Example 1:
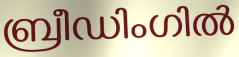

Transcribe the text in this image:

ബ്രീഡിംഗിൽ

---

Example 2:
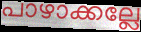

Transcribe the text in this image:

പാഴാക്കല്ലേ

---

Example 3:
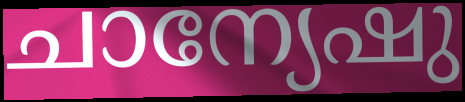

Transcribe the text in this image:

ചാന്യേഷു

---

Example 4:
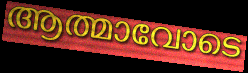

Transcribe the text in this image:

ആത്മാവോടെ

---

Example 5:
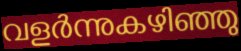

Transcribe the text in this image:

വളർന്നുകഴിഞ്ഞു